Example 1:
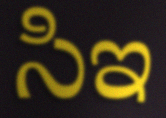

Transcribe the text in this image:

సిఇ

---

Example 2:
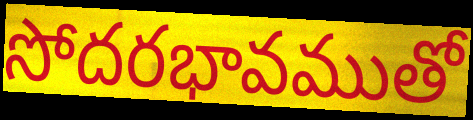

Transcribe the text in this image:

సోదరభావముతో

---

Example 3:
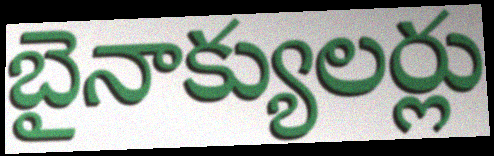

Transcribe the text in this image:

బైనాక్యులర్లు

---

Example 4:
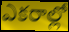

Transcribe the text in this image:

ఎకరాల్లో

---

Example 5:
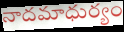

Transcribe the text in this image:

నాదమాధుర్యం